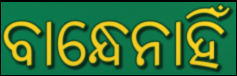
ବାନ୍ଧେନାହିଁ